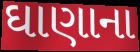
ઘાણાના